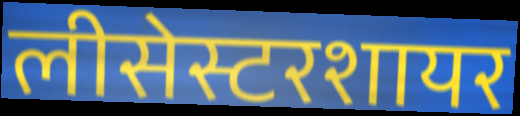
लीसेस्टरशायर